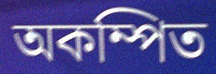
অকম্পিত